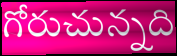
గోరుచున్నది